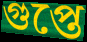
গুপ্তে